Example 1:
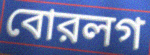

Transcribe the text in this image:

বোরলগ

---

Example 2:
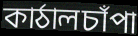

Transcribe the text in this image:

কাঠালচাঁপা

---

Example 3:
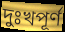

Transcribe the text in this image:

দুঃখপূর্ণ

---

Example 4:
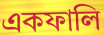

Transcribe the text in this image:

একফালি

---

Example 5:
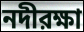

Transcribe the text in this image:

নদীরক্ষা